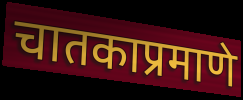
चातकाप्रमाणे